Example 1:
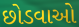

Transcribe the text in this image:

છોડવાઓ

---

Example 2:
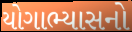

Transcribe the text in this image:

યોગાભ્યાસનો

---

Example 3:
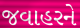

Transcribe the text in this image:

જવાહરને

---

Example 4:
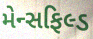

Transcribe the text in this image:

મેન્સફિલ્ડ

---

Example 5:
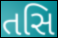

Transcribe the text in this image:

તસિ